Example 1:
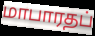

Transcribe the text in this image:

மாபாரதப்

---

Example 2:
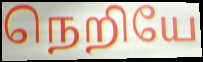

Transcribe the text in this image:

நெறியே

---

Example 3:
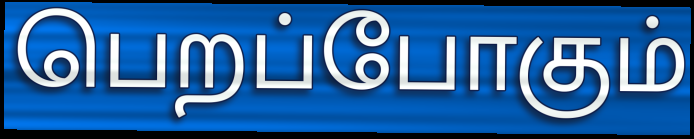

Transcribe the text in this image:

பெறப்போகும்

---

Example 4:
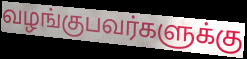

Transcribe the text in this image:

வழங்குபவர்களுக்கு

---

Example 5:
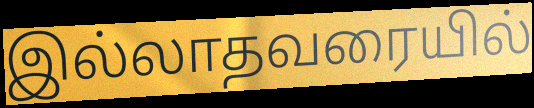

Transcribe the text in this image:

இல்லாதவரையில்